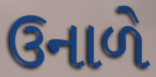
ઉનાળે